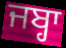
ਜਬ੍ਹਾ